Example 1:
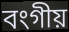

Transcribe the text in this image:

বংগীয়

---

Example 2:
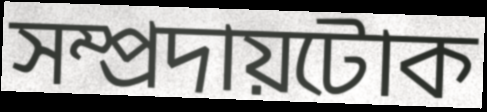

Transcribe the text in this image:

সম্প্ৰদায়টোক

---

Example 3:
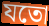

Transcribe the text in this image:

যতো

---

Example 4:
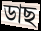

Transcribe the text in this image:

ডাছ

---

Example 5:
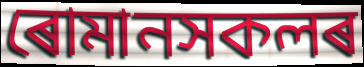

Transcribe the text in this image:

ৰোমানসকলৰ